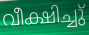
വീക്ഷിച്ചു്